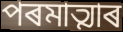
পৰমাত্মাৰ